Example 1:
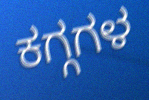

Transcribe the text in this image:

ಕಗ್ಗಗಳ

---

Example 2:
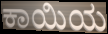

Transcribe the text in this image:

ಕಾಯಿಯ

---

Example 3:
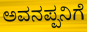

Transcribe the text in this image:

ಅವನಪ್ಪನಿಗೆ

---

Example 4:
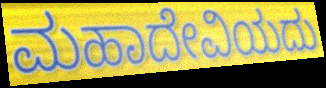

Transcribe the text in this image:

ಮಹಾದೇವಿಯದು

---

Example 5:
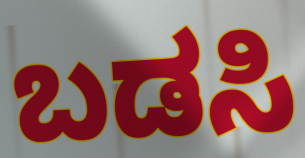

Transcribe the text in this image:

ಬಡಸಿ